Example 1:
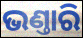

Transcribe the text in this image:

ଭଣ୍ତାରି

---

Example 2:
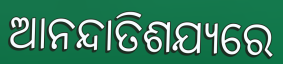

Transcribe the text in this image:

ଆନନ୍ଦାତିଶଯ୍ୟରେ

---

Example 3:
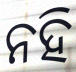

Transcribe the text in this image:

ନହି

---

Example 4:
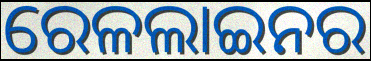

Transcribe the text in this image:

ରେଳଲାଇନର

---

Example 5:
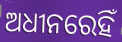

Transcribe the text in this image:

ଅଧୀନରେହିଁ